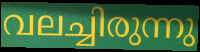
വലച്ചിരുന്നു